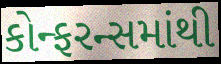
કોન્ફરન્સમાંથી